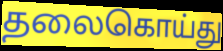
தலைகொய்து